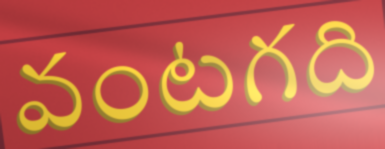
వంటగది